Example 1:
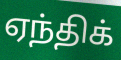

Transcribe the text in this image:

ஏந்திக்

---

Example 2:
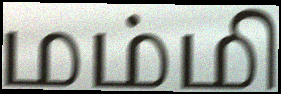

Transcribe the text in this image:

மம்மி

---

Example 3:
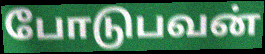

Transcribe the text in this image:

போடுபவன்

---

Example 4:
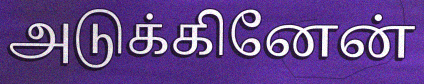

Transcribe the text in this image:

அடுக்கினேன்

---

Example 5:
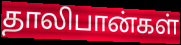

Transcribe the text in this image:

தாலிபான்கள்